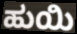
ಹುಯಿ